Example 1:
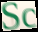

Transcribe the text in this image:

Sc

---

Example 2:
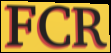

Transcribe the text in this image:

FCR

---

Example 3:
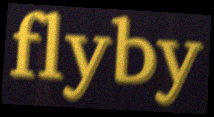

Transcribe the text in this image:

flyby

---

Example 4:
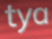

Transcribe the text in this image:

tya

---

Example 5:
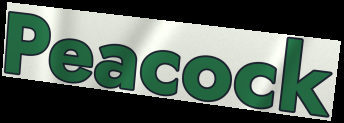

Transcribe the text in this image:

Peacock